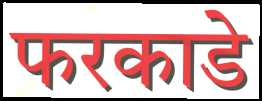
फरकाडे